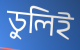
ডুলিই